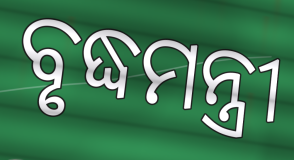
ବୃଦ୍ଧମନ୍ତ୍ରୀ